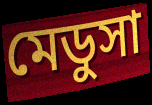
মেডুসা